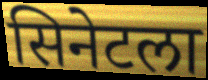
सिनेटला